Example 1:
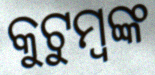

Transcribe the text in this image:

କୁଟୁମ୍ବଙ୍କ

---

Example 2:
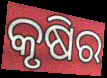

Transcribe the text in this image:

କୃଷିର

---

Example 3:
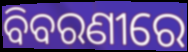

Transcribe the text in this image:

ବିବରଣୀରେ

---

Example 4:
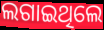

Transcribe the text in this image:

ଲଗାଇଥିଲେ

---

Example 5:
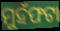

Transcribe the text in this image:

ମୁହଁଫଟା